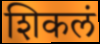
शिकलं